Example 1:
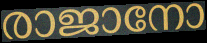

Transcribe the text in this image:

രാജാനോ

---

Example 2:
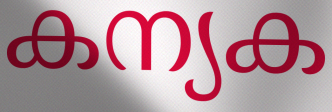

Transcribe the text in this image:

കന്യക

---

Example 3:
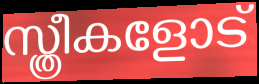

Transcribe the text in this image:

സ്ത്രീകളോട്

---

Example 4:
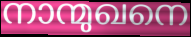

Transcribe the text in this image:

നാന്മുഖനെ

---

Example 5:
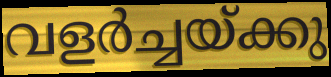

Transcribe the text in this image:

വളർച്ചയ്ക്കു